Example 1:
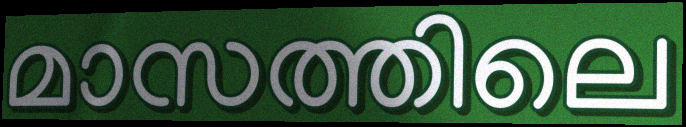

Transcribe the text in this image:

മാസത്തിലെ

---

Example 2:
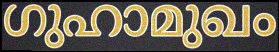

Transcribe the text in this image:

ഗുഹാമുഖം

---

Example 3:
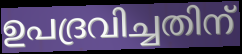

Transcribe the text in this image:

ഉപദ്രവിച്ചതിന്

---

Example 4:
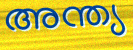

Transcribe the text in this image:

അന്ത്യ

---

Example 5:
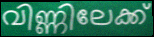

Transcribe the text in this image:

വിണ്ണിലേക്ക്